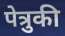
पेत्रुकी